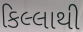
કિલ્લાથી